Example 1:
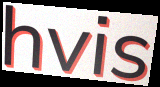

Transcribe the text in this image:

hvis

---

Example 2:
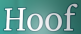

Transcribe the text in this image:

Hoof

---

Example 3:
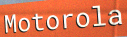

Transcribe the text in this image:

Motorola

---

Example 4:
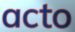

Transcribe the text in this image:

acto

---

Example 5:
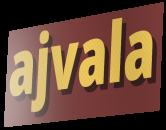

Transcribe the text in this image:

ajvala